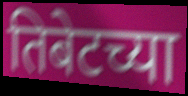
तिबेटच्या